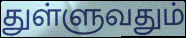
துள்ளுவதும்